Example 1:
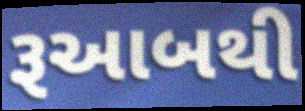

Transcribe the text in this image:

રૂઆબથી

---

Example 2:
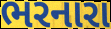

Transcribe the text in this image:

ભરનારા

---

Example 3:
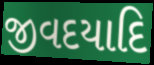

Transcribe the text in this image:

જીવદયાદિ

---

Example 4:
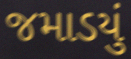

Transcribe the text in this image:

જમાડયું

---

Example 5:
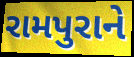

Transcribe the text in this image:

રામપુરાને